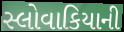
સ્લોવાકિયાની